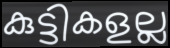
കുട്ടികളല്ല